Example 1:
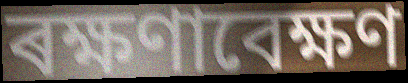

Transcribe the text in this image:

ৰক্ষণাবেক্ষণ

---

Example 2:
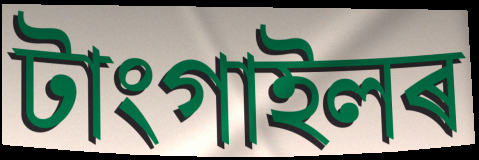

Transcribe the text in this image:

টাংগাইলৰ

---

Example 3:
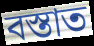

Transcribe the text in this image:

বস্তাত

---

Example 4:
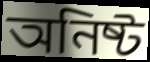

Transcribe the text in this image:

অনিষ্ট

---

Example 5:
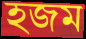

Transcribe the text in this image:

হজম